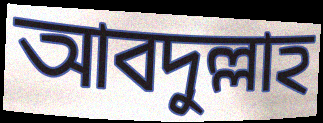
আবদুল্লাহ